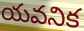
యవనిక